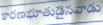
కారణభూతుడైనవాడు